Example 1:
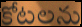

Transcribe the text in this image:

కోటలను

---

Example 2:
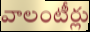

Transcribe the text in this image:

వాలంటీర్లు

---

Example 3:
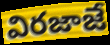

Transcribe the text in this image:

విరజాజే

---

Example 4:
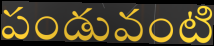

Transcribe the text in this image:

పండువంటి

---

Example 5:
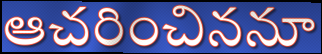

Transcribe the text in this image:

ఆచరించిననూ